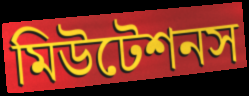
মিউটেশনস